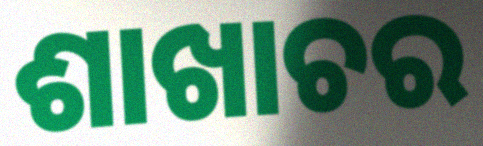
ଶାଖାଚର